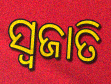
ସ୍ୱଜାତି